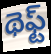
థెఫ్ట్